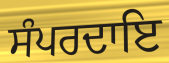
ਸੰਪਰਦਾਇ